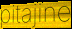
pitajine